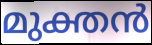
മുക്തൻ